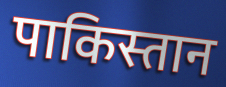
पाकिस्तान